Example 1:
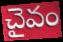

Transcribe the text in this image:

చైవం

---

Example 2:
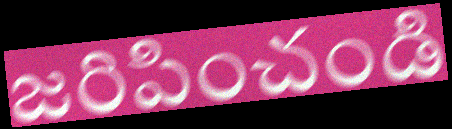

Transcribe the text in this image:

జరిపించండి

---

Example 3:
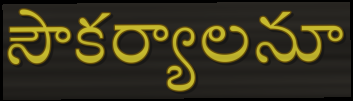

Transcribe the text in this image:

సౌకర్యాలనూ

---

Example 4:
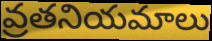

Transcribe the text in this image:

వ్రతనియమాలు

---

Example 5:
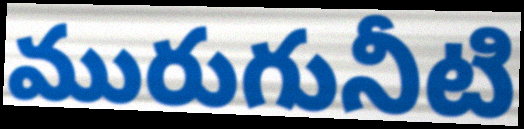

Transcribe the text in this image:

మురుగునీటి